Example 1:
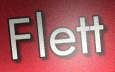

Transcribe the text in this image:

Flett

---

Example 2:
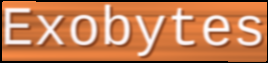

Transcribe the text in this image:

Exobytes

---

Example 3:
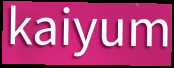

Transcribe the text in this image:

kaiyum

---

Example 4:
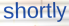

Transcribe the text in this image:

shortly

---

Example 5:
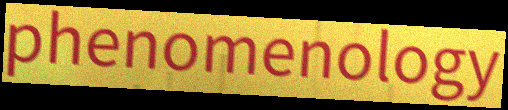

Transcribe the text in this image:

phenomenology